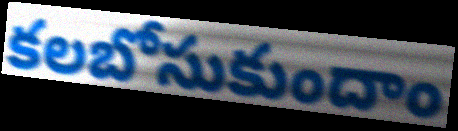
కలబోసుకుందాం